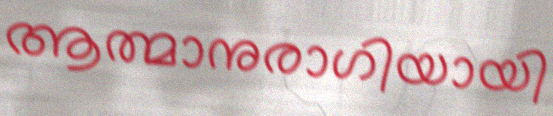
ആത്മാനുരാഗിയായി